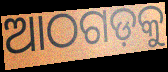
ଆଠଗଡ଼କୁ